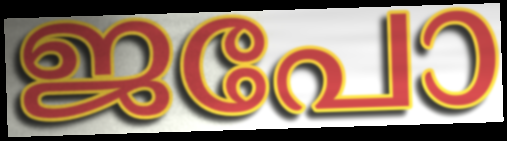
ജപോ